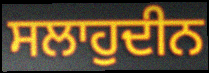
ਸਲਾਹੁਦੀਨ